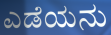
ಎಡೆಯನು